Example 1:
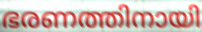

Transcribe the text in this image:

ഭരണത്തിനായി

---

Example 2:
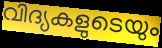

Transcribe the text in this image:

വിദ്യകളുടെയും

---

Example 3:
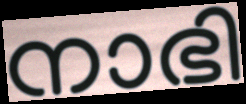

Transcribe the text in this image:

നാഭി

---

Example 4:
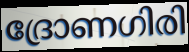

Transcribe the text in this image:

ദ്രോണഗിരി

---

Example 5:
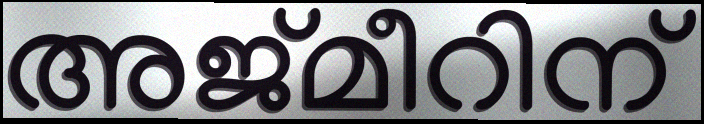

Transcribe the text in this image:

അജ്മീറിന്